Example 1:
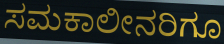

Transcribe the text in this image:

ಸಮಕಾಲೀನರಿಗೂ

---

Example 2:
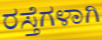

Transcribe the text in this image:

ರಸ್ತೆಗಳಾಗಿ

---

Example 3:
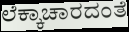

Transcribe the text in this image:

ಲೆಕ್ಕಾಚಾರದಂತೆ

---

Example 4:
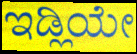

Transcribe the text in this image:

ಇಡ್ಲಿಯೇ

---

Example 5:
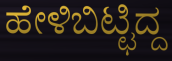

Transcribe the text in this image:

ಹೇಳಿಬಿಟ್ಟಿದ್ದ